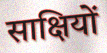
साक्षियों